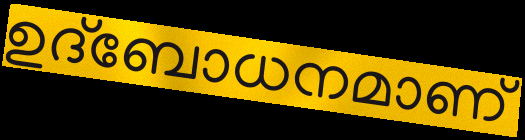
ഉദ്ബോധനമാണ്